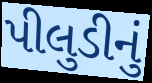
પીલુડીનું